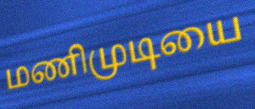
மணிமுடியை